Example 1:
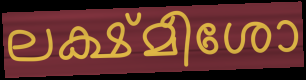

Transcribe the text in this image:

ലക്ഷ്മീശോ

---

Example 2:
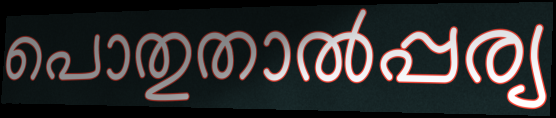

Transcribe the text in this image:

പൊതുതാൽപ്പര്യ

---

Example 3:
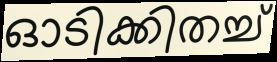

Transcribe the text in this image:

ഓടിക്കിതച്ച്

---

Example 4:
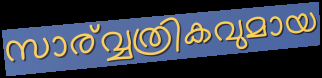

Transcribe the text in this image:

സാര്വ്വത്രികവുമായ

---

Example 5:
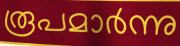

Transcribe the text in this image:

രൂപമാർന്നു